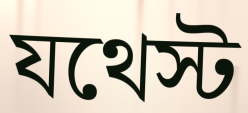
যথেস্ট